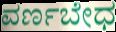
ವರ್ಣಬೇಧ